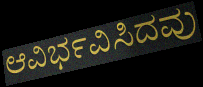
ಆವಿರ್ಭವಿಸಿದವು